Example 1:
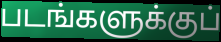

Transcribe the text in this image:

படங்களுக்குப்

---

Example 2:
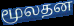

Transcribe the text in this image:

மூலதன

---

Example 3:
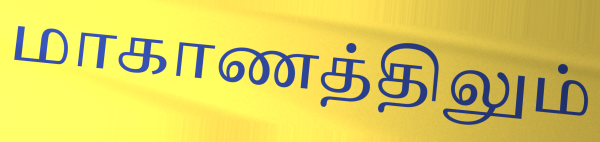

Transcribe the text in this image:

மாகாணத்திலும்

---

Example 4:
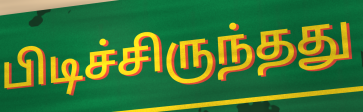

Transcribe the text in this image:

பிடிச்சிருந்தது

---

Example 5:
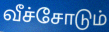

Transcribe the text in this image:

வீச்சோடும்